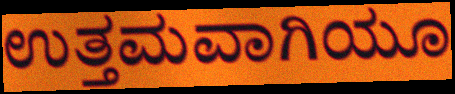
ಉತ್ತಮವಾಗಿಯೂ